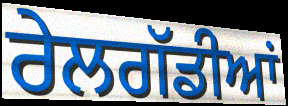
ਰੇਲਗੱਡੀਆਂ